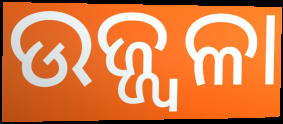
ଉଜ୍ଜ୍ୱଳା